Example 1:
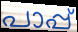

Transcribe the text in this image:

പാപ്പ്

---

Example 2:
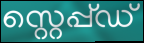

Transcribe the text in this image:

സ്റ്റെപ്പ്ഡ്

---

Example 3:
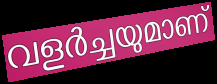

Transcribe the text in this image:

വളർച്ചയുമാണ്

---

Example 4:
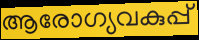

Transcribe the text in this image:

ആരോഗ്യവകുപ്പ്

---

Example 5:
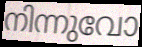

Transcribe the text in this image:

നിന്നുവോ